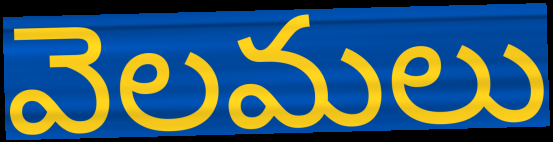
వెలమలు